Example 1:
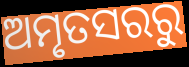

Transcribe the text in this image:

ଅମୃତସରରୁ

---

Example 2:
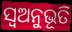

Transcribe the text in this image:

ସ୍ୱଅନୁଭୂତି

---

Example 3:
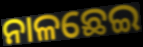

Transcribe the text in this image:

ନାଳଛେଇ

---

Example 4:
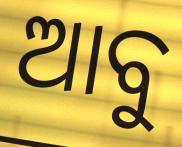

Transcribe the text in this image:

ଆବୁ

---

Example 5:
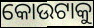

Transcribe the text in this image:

କୋଉଟାକୁ